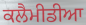
ਕਲੈਮੀਡੀਆ